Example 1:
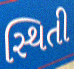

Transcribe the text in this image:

સ્થિતી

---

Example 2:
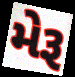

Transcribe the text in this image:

મેરૂ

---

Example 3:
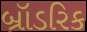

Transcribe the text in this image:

બ્રૉડરિક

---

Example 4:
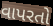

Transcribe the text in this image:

વાપરતો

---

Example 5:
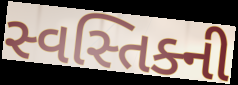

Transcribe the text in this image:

સ્વસ્તિક્ની